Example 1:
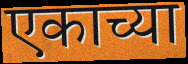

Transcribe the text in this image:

एकाच्या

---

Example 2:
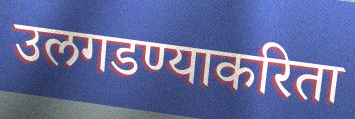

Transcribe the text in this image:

उलगडण्याकरिता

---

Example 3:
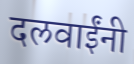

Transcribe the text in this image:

दलवाईंनी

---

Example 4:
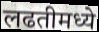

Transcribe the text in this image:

लढतीमध्ये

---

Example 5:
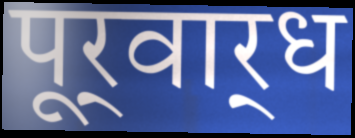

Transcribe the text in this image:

पूर्वार्ध